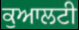
ਕੁਆਲਟੀ